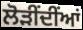
ਲੋੜੀਂਦੀਂਆਂ